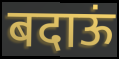
बदाऊं